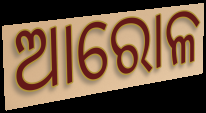
ଆରୋଳ